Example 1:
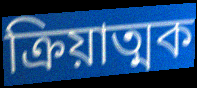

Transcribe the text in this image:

ক্ৰিয়াত্মক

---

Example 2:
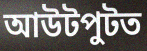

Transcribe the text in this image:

আউটপুটত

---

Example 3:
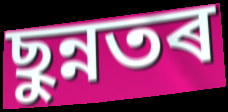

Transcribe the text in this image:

ছুন্নতৰ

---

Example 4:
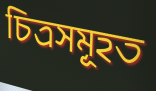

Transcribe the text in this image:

চিত্ৰসমূহত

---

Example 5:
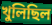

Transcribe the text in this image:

খুলিছিল